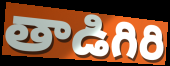
తాడిగిరి